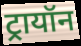
ट्रायॉन